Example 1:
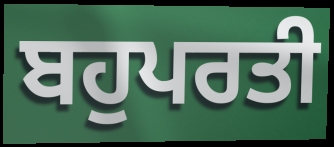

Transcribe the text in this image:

ਬਹੁਪਰਤੀ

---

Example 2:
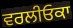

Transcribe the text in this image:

ਵਰਲੀਓਕਾ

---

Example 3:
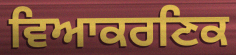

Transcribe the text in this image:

ਵਿਆਕਰਣਿਕ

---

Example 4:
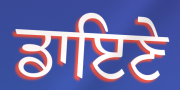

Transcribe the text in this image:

ਡਾਇਣੇ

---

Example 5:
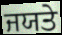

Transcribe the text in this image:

ਜਯਤੇ